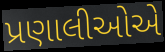
પ્રણાલીઓએ